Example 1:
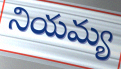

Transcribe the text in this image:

నియమ్య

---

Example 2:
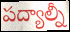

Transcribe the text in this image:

పద్యాల్నీ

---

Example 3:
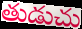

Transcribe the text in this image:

తుడుచు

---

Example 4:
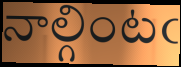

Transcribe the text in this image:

నాల్గింటఁ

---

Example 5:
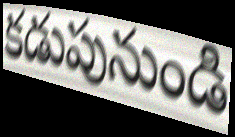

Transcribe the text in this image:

కడుపునుండి